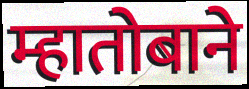
म्हातोबाने